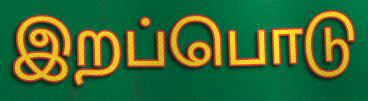
இறப்பொடு